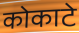
कोकाटे